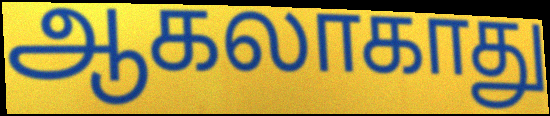
ஆகலாகாது